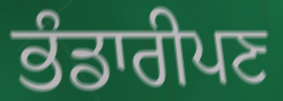
ਭੰਡਾਰੀਪਣ